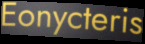
Eonycteris